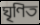
ঘৃণিত